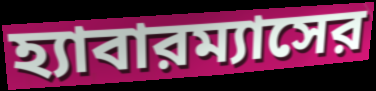
হ্যাবারম্যাসের